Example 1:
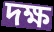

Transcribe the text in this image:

দক্ষ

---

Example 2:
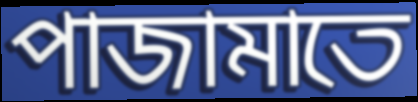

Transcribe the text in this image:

পাজামাতে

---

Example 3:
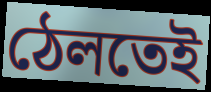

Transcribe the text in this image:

ঠেলতেই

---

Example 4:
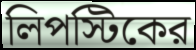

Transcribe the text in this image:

লিপস্টিকের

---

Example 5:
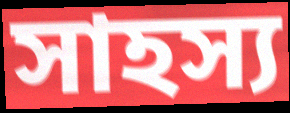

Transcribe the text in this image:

সাহস্য